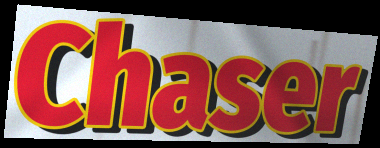
Chaser